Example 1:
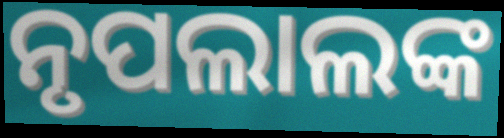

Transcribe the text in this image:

ନୃପଲାଲଙ୍କ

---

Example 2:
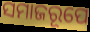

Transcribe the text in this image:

ସମାଜରୂପେ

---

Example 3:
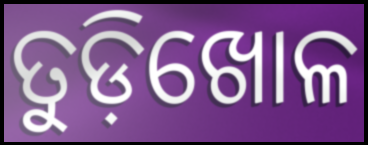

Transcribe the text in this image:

ତୁଡ଼ିଖୋଳ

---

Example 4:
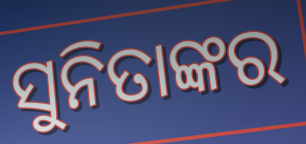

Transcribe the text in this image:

ସୁନିତାଙ୍କର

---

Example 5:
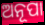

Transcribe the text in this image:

ଅନୂପା